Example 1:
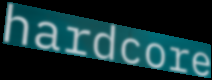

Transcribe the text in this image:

hardcore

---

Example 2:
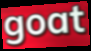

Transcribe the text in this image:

goat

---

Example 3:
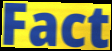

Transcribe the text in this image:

Fact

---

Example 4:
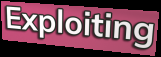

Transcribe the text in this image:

Exploiting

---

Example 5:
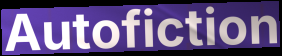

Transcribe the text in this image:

Autofiction